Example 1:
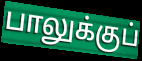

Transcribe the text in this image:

பாலுக்குப்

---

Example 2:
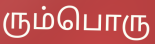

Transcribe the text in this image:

ரும்பொரு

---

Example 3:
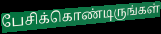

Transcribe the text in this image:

பேசிக்கொண்டிருங்கள்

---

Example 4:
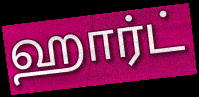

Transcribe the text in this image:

ஹார்ட்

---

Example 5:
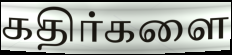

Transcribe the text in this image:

கதிர்களை